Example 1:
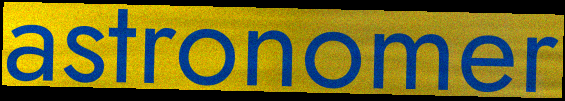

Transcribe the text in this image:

astronomer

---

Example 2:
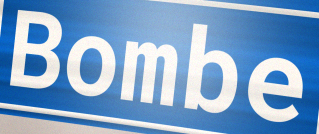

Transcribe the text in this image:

Bombe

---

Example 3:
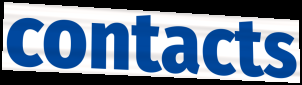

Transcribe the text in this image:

contacts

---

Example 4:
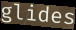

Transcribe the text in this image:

glides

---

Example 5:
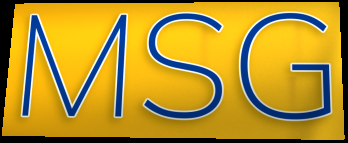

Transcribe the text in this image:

MSG